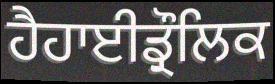
ਹੈਹਾਈਡ੍ਰੌਲਿਕ